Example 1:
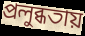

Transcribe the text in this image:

প্রলুব্ধতায়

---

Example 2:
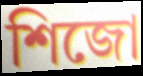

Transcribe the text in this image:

শিজো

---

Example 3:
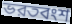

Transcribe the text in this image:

ভরতবংশ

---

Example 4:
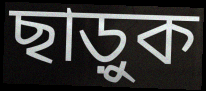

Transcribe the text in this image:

ছাড়ুক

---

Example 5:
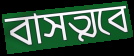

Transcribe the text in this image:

বাসত্মবে